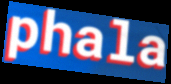
phala